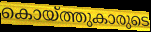
കൊയ്ത്തുകാരുടെ